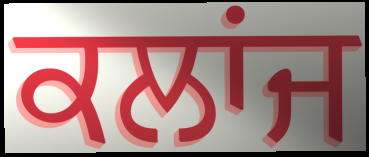
ਕਲਾਂਜ